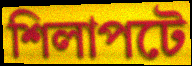
শিলাপটে